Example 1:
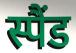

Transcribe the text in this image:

स्पैंड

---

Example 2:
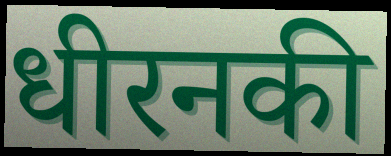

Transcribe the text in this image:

धीरनकी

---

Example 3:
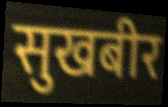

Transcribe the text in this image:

सुखबीर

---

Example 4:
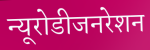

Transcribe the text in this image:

न्यूरोडीजनरेशन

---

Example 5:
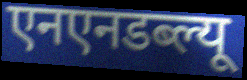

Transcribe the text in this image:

एनएनडब्ल्यू